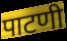
पाटणी